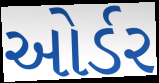
ઓર્ડર